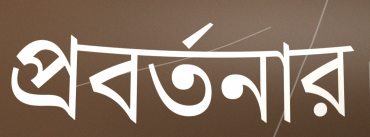
প্রবর্তনার